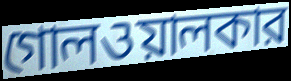
গোলওয়ালকার